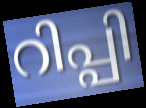
റിപ്പി